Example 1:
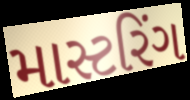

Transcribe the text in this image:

માસ્ટરિંગ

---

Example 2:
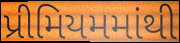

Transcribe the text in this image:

પ્રીમિયમમાંથી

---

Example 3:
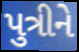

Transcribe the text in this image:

પુત્રીને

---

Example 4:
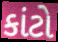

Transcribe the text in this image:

કાંટો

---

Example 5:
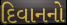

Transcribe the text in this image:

દિવાનનો